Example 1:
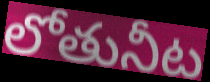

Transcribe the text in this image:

లోతునీట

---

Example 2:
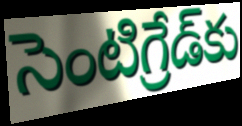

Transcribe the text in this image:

సెంటిగ్రేడ్‌కు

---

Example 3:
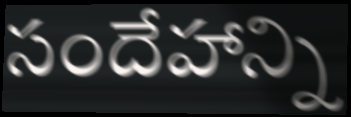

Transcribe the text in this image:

సందేహాన్ని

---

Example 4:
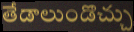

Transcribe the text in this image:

తేడాలుండొచ్చు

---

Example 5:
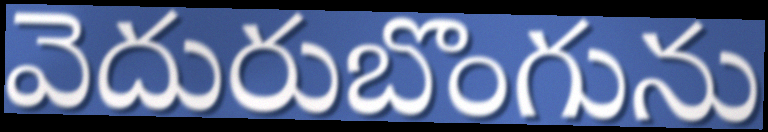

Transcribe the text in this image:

వెదురుబొంగును